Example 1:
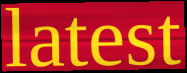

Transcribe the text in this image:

latest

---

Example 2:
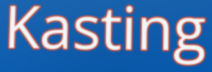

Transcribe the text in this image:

Kasting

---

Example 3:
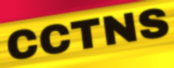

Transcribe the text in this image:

CCTNS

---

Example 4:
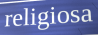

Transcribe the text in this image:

religiosa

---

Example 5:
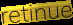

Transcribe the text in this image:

retinue